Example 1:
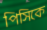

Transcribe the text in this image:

পিসিকে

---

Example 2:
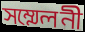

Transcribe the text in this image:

সম্মেলনী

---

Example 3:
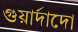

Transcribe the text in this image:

গুয়ার্দাদো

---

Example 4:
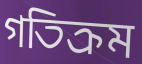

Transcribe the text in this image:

গতিক্রম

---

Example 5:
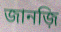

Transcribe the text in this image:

জানজ়ি